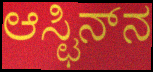
ಆಸ್ಟಿನ್‌ನ